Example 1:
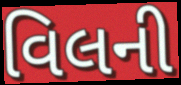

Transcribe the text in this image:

વિલની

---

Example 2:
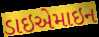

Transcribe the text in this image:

ડાઇએમાઇન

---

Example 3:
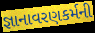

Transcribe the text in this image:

જ્ઞાનાવરણકર્મની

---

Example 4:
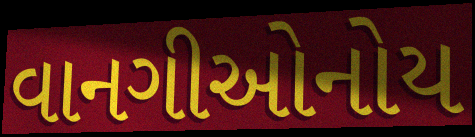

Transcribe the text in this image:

વાનગીઓનોય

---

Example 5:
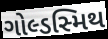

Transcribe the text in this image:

ગોલ્ડસ્મિથ